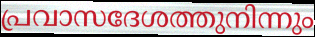
പ്രവാസദേശത്തുനിന്നും